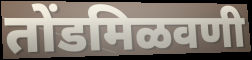
तोंडमिळवणी